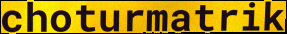
choturmatrik